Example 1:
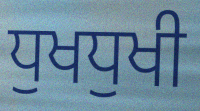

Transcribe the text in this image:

ਧੁਖਧੁਖੀ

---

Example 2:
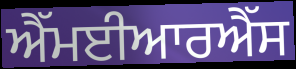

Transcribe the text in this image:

ਐੱਮਈਆਰਐੱਸ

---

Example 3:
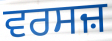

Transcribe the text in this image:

ਵਰਸਜ਼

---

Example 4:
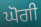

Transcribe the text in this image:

ਘੋਗੀ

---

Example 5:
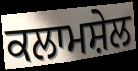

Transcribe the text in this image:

ਕਲਾਮਸ਼ੇਲ